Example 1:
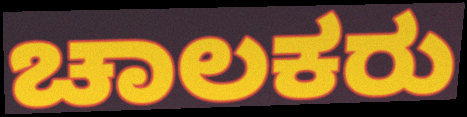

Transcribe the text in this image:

ಚಾಲಕರು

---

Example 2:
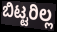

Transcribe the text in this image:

ಬಿಟ್ಟರಿಲ್ಲ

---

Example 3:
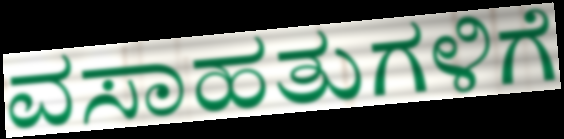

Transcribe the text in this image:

ವಸಾಹತುಗಳಿಗೆ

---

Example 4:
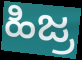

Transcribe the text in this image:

ಹಿಜ್ರ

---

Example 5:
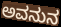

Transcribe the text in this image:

ಅವನುನ